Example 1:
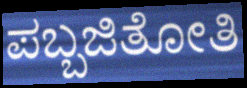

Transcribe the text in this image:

ಪಬ್ಬಜಿತೋತಿ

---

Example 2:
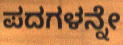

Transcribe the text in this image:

ಪದಗಳನ್ನೇ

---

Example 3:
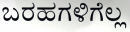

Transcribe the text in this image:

ಬರಹಗಳಿಗೆಲ್ಲ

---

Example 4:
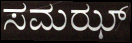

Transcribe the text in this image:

ಸಮಝ್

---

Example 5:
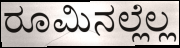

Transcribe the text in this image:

ರೂಮಿನಲ್ಲೆಲ್ಲ